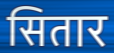
सितार